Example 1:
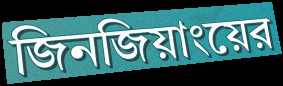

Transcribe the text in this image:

জিনজিয়াংয়ের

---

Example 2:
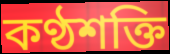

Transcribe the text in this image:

কণ্ঠশক্তি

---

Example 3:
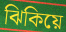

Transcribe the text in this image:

ঝিকিয়ে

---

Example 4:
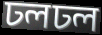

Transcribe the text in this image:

ঢলঢল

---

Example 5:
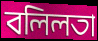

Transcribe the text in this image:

বলিলতা